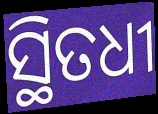
ସ୍ଥିତଧୀ